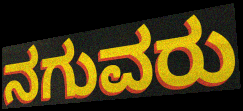
ನಗುವರು